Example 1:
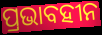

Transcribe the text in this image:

ପ୍ରଭାବହୀନ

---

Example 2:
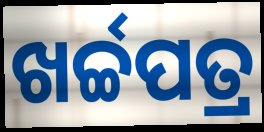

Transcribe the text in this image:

ଖର୍ଚ୍ଚପତ୍ର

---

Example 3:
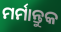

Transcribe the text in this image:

ମର୍ମାନ୍ତୁକ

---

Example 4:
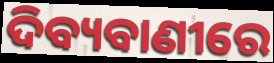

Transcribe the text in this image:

ଦିବ୍ୟବାଣୀରେ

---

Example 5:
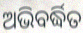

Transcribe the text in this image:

ଅଭିବର୍ଦ୍ଧିତ